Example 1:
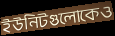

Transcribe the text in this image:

ইউনিটগুলোকেও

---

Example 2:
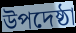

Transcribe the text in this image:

উপদেষ্ঠা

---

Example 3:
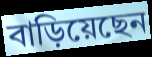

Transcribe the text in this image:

বাড়িয়েছেন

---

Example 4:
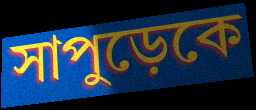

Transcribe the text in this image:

সাপুড়েকে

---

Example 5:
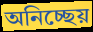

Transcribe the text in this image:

অনিচ্ছেয়